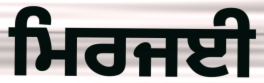
ਮਿਰਜਈ